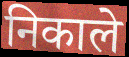
निकाले